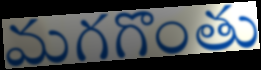
మగగొంతు